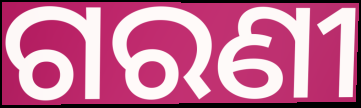
ଗରଣୀ